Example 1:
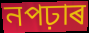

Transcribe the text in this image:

নপঢ়াৰ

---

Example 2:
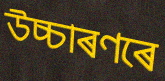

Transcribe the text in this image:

উচ্চাৰণৰে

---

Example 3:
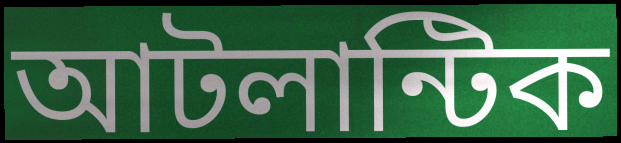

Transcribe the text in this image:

আটলান্টিক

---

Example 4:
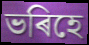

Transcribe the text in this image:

ভৰিহে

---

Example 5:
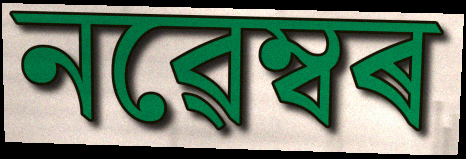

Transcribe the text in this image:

নৱেম্বৰ